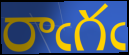
రాఁగఁ